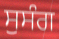
ਸੁਸੰਗ